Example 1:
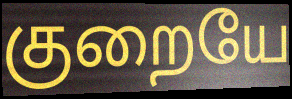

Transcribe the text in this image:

குறையே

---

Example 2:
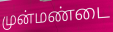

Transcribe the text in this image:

முன்மண்டை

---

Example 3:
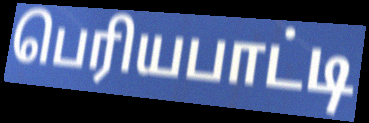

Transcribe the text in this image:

பெரியபாட்டி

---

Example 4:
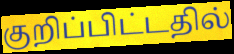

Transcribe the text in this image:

குறிப்பிட்டதில்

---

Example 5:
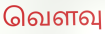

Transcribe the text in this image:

வெளவு